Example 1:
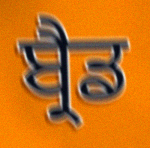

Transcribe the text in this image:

ਬ੍ਰੈਡ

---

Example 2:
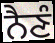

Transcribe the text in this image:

ਨੈਣੰ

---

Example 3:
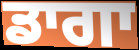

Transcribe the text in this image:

ਡਾਗਾ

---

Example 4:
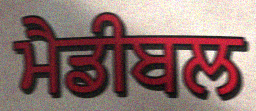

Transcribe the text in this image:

ਮੈਡੀਬਲ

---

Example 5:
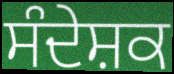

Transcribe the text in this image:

ਸੰਦੇਸ਼ਕ